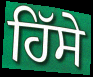
ਹਿੱਸੇ